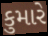
કુમારે